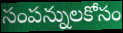
సంపన్నులకోసం